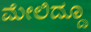
ಮೇಲಿದ್ದೂ